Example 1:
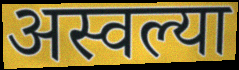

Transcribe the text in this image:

अस्वल्या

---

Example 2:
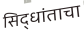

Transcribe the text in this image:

सिद्धांताचा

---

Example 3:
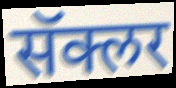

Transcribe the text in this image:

सॅक्लर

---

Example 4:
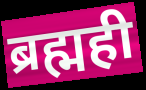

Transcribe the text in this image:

ब्रह्मही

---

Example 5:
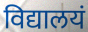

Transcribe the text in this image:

विद्यालयं